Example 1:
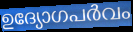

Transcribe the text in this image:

ഉദ്യോഗപർവം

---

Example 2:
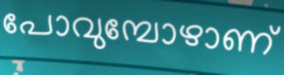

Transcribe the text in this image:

പോവുമ്പോഴാണ്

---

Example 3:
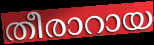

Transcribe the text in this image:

തീരാറായ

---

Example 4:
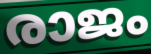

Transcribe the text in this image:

രാജം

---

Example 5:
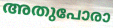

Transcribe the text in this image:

അതുപോരാ